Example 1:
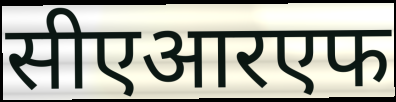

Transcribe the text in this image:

सीएआरएफ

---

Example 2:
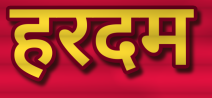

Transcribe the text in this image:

हरदम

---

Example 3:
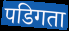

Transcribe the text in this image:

पडिगता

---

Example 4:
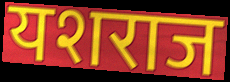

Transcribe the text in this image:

यशराज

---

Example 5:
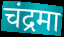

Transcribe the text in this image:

चंद्रमा